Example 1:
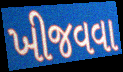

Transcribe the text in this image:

ખીજવવા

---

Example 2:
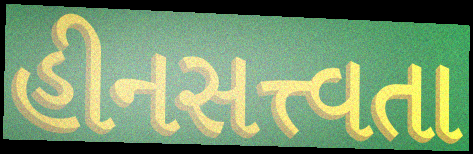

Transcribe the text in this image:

હીનસત્ત્વતા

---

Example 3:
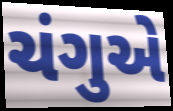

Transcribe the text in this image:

ચંગુએ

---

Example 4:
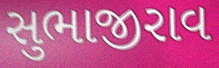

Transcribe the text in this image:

સુભાજીરાવ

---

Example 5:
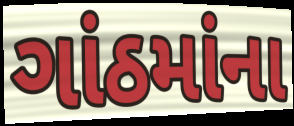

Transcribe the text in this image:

ગાંઠમાંના